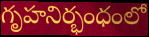
గృహనిర్భంధంలో